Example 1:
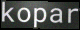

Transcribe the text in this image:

kopar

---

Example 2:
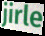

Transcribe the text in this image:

jirle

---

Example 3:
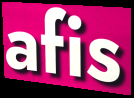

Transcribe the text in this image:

afis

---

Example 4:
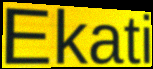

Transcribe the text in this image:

Ekati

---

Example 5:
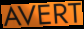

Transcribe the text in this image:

AVERT